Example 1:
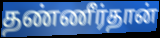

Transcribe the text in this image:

தண்ணீர்தான்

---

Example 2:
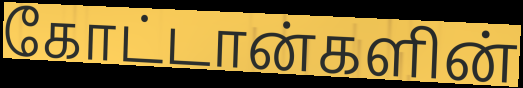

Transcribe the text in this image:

கோட்டான்களின்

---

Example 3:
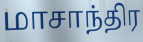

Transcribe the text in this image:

மாசாந்திர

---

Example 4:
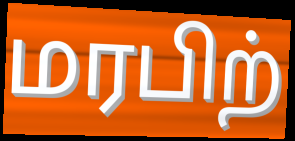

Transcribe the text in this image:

மரபிற்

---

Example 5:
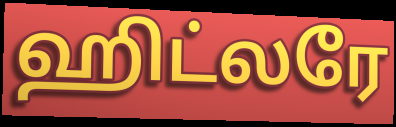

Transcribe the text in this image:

ஹிட்லரே